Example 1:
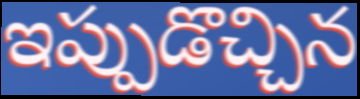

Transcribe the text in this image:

ఇప్పుడొచ్చిన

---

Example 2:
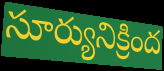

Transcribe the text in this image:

సూర్యునిక్రింద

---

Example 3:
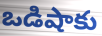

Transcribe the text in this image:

ఒడిషాకు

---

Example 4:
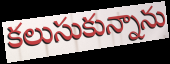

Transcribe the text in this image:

కలుసుకున్నాను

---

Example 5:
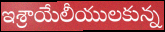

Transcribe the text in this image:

ఇశ్రాయేలీయులకున్న